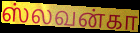
ஸ்லவன்கா